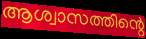
ആശ്വാസത്തിന്റെ